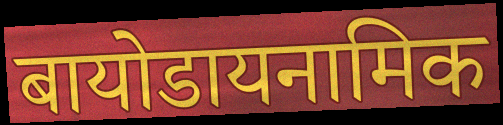
बायोडायनामिक